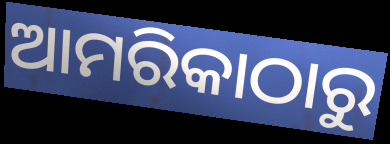
ଆମରିକାଠାରୁ